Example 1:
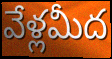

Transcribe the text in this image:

వేళ్లమీద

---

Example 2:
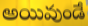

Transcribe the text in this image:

అయివుండే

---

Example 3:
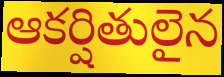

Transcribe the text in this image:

ఆకర్షితులైన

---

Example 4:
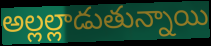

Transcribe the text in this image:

అల్లల్లాడుతున్నాయి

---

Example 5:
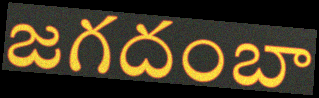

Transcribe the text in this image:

జగదంబా